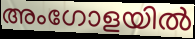
അംഗോളയിൽ